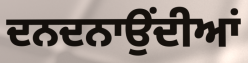
ਦਨਦਨਾਉਂਦੀਆਂ